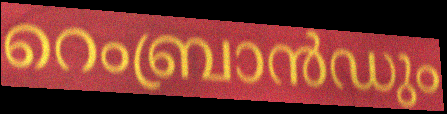
റെംബ്രാൻഡും